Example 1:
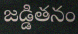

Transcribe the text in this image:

జడ్డితనం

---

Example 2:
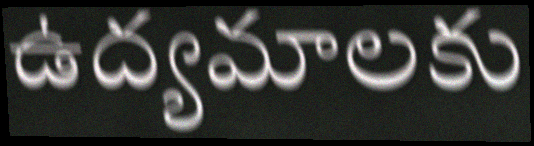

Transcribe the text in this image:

ఉద్యమాలకు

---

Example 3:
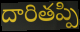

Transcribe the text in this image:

దారితప్పి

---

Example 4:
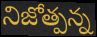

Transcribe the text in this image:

నిజోత్పన్న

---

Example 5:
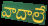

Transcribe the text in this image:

వాదాలే